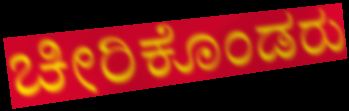
ಚೀರಿಕೊಂಡರು